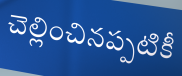
చెల్లించినప్పటికీ